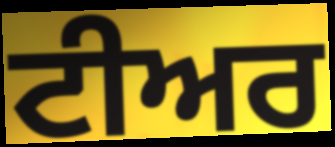
ਟੀਅਰ